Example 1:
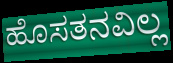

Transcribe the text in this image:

ಹೊಸತನವಿಲ್ಲ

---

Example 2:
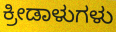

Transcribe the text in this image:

ಕ್ರೀಡಾಳುಗಳು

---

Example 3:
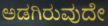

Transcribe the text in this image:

ಅಡಗಿರುವುದೇ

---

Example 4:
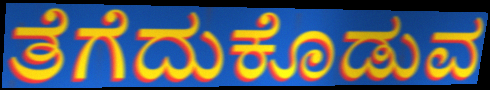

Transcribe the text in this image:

ತೆಗೆದುಕೊಡುವ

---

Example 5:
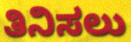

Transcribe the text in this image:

ತಿನಿಸಲು